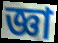
জ্ঞা